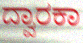
ದ್ವಾರಕಾ